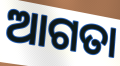
ଆଗତା